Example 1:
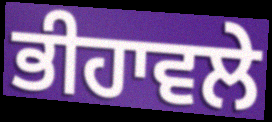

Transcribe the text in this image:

ਭੀਹਾਵਲੇ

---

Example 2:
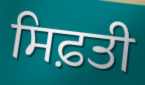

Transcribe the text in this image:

ਸਿਫ਼ਤੀ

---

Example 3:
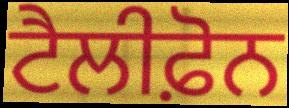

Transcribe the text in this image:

ਟੈਲੀਫ਼ੋਨ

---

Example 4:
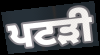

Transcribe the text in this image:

ਪਟੜੀ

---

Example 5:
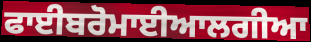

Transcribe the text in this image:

ਫਾਈਬਰੋਮਾਈਆਲਗੀਆ